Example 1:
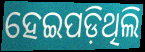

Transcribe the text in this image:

ହେଇପଡ଼ିଥିଲି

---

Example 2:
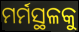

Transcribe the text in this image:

ମର୍ମସ୍ଥଳକୁ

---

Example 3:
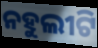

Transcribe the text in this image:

ନହୁଲୀଟି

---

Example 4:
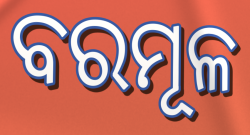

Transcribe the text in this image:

ବରମୂଳ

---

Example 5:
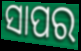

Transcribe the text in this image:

ସାପର